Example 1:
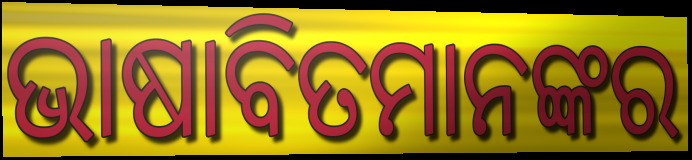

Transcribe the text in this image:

ଭାଷାବିତମାନଙ୍କର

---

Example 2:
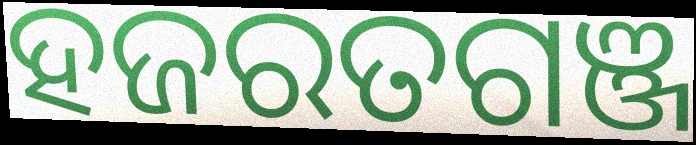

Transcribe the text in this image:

ହଜରତଗଞ୍ଜ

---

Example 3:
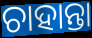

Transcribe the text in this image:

ଚାହାନ୍ତା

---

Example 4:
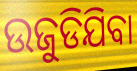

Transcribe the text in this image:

ଉଜୁଡିଯିବା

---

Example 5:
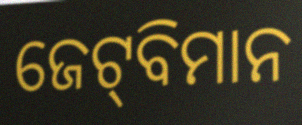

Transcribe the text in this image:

ଜେଟ୍‍ବିମାନ